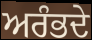
ਅਰੰਭਦੇ